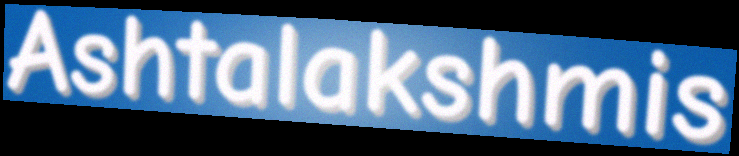
Ashtalakshmis